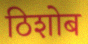
ठिशोब